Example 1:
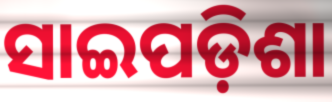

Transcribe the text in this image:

ସାଇପଡ଼ିଶା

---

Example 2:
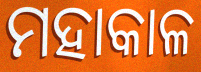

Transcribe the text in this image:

ମହାକାଳ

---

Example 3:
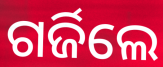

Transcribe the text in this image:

ଗର୍ଜିଲେ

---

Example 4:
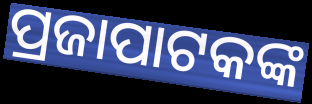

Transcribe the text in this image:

ପ୍ରଜାପାଟକଙ୍କ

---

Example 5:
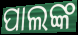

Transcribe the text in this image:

ପାଲଙ୍କ